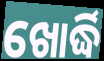
ଖୋର୍ଦ୍ଧି